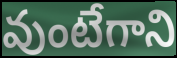
వుంటేగాని